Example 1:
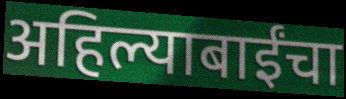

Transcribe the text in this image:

अहिल्याबाईंचा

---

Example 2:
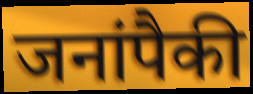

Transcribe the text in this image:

जनांपैकी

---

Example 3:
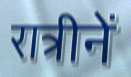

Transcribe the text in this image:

रात्रीनें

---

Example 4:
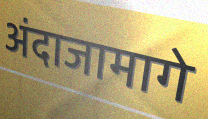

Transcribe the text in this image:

अंदाजामागे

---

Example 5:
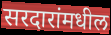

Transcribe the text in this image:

सरदारांमधील